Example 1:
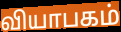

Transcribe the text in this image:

வியாபகம்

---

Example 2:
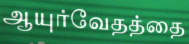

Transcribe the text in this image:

ஆயுர்வேதத்தை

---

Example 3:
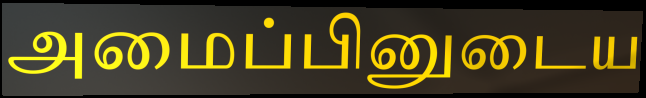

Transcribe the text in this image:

அமைப்பினுடைய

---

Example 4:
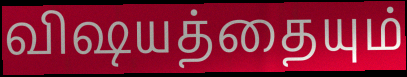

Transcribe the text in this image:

விஷயத்தையும்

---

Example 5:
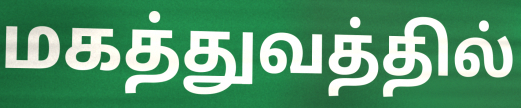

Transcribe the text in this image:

மகத்துவத்தில்